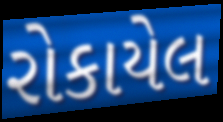
રોકાયેલ